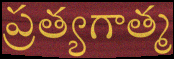
ప్రత్యగాత్మ